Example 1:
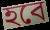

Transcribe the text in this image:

হবে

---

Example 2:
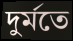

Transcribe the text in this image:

দুর্মতে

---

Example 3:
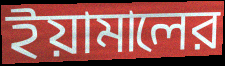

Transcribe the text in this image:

ইয়ামালের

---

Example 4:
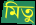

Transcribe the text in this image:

মিতু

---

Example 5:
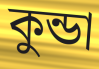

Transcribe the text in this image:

কুন্ডা